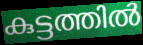
കുട്ടത്തിൽ